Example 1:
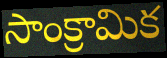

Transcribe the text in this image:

సాంక్రామిక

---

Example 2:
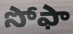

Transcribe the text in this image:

సోఫా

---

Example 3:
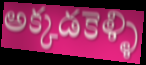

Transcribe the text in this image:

అక్కడకెళ్ళి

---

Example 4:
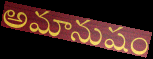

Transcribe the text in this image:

అమానుషం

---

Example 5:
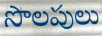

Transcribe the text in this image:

సొలపులు